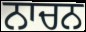
ਨਾਚਨ